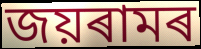
জয়ৰামৰ